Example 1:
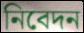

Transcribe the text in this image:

নিবেদন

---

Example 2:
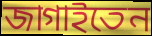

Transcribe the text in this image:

জাগাইতেন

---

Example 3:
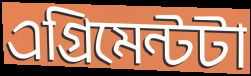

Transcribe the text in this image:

এগ্রিমেন্টটা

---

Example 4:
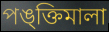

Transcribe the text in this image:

পঙ্ক্তিমালা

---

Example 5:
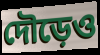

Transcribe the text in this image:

দৌড়েও